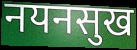
नयनसुख